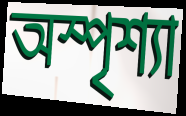
অস্পৃশ্যা